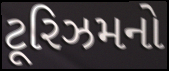
ટૂરિઝમનો